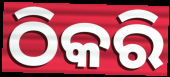
ଠିକରି